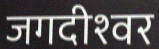
जगदीश्वर